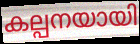
കല്പനയായി